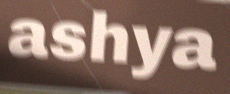
ashya